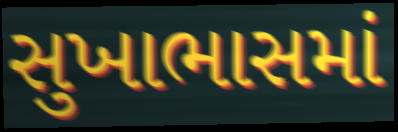
સુખાભાસમાં